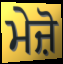
ਮੇਜ਼ੋ